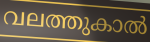
വലത്തുകാൽ